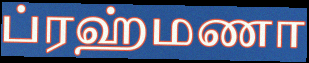
ப்ரஹ்மணா